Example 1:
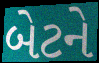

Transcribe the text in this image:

બેટને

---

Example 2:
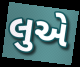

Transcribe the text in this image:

લુએ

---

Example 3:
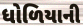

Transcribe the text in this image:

ધોળિયાની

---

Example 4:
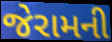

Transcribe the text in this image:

જેરામની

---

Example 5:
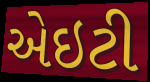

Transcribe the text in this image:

એઇટી